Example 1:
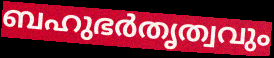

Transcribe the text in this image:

ബഹുഭർതൃത്വവും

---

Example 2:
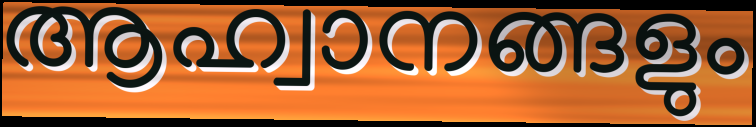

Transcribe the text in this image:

ആഹ്വാനങ്ങളും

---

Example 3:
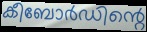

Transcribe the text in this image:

കീബോർഡിന്റെ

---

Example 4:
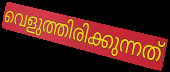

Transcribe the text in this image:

വെളുത്തിരിക്കുന്നത്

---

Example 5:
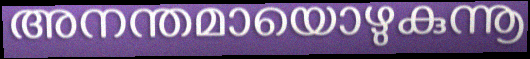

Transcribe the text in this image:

അനന്തമായൊഴുകുന്നൂ